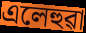
এলেহুৱা